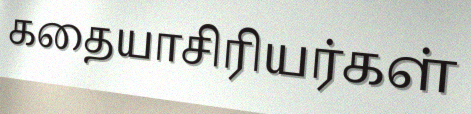
கதையாசிரியர்கள்